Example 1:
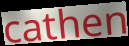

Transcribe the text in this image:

cathen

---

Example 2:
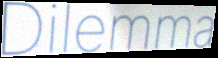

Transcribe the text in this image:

Dilemma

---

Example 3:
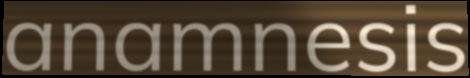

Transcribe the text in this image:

anamnesis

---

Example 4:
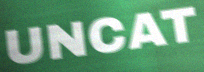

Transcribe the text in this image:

UNCAT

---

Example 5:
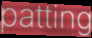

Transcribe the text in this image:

patting